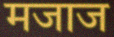
मजाज